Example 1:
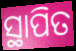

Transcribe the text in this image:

ସ୍ଥାପିତ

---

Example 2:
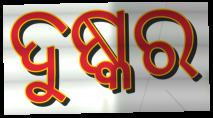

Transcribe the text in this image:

ଦୁଷ୍କର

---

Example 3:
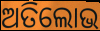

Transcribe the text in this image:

ଅତିଲୋଭ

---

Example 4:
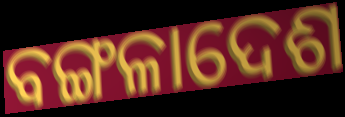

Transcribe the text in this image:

ବଙ୍ଗଳାଦେଶ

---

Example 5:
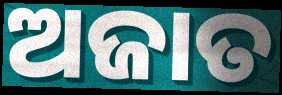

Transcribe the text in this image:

ଅଜାତ